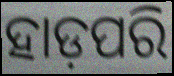
ହାଡ଼ପରି